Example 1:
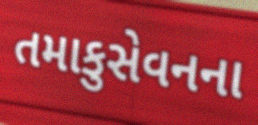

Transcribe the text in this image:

તમાકુસેવનના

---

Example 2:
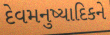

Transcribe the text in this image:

દેવમનુષ્યાદિકને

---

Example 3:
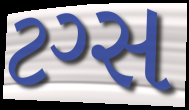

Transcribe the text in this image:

ટગ્સ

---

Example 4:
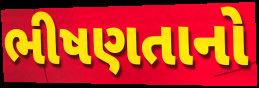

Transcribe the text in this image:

ભીષણતાનો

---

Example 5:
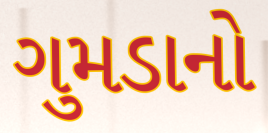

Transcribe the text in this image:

ગુમડાનો